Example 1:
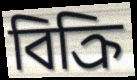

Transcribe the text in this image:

বিক্রি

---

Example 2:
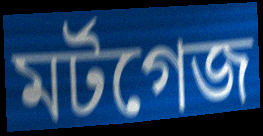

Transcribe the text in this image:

মর্টগেজ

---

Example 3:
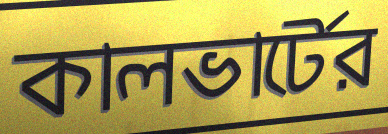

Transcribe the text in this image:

কালভার্টের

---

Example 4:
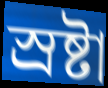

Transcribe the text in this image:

স্রষ্টা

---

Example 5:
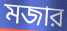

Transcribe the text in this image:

মজার